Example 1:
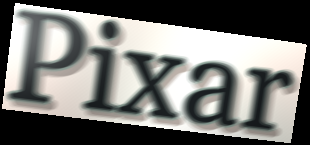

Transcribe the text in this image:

Pixar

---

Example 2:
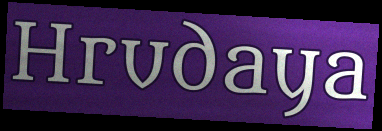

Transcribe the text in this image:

Hrudaya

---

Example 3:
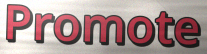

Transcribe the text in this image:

Promote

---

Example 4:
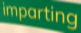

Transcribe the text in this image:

imparting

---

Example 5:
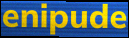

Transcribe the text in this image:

enipude